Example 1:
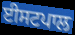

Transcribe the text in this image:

ਈਸਟਪਾਲ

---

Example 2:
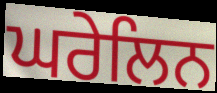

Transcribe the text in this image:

ਘਰੇਲਿਨ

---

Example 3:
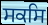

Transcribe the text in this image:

ਸਕਸਿ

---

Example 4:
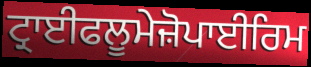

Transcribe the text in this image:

ਟ੍ਰਾਈਫਲੂਮੇਜ਼ੋਪਾਈਰਿਮ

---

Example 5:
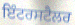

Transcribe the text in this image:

ਇੰਟਰਸਟੈਲਰ